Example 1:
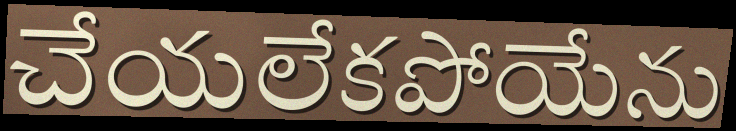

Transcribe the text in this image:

చేయలేకపోయేను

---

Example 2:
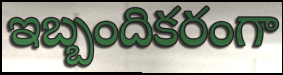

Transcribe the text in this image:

ఇబ్బందికరంగా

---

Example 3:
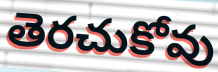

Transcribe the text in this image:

తెరచుకోవు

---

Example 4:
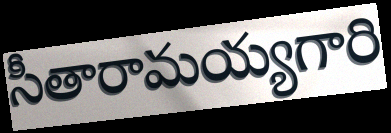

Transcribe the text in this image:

సీతారామయ్యగారి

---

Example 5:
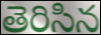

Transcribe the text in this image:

తెరిసిన